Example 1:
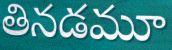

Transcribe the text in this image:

తినడమూ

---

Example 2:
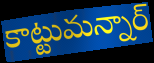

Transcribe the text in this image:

కాట్టుమన్నార్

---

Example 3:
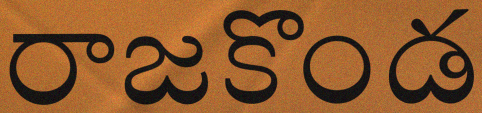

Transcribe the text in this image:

రాజకొండ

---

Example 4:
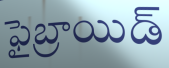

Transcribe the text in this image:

ఫైబ్రాయిడ్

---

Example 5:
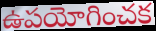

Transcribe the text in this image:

ఉపయోగించక